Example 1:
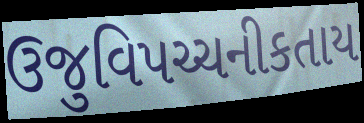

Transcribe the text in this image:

ઉજુવિપચ્ચનીકતાય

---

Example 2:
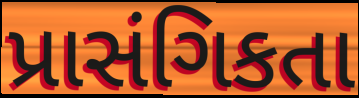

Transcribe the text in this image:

પ્રાસંગિકતા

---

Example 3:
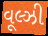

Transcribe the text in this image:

વૂલ્ઝી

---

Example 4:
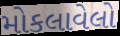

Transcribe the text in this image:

મોકલાવેલો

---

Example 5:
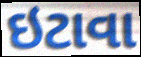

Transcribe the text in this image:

ઇટાવા